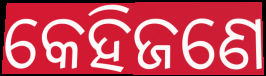
କେହିଜଣେ